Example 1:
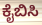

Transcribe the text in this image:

ಕೈಬಿಸಿ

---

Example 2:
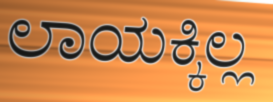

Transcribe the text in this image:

ಲಾಯಕ್ಕಿಲ್ಲ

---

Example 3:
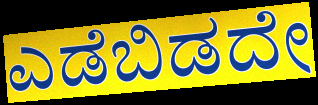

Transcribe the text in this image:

ಎಡೆಬಿಡದೇ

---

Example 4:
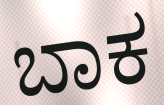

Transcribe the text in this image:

ಬಾಕ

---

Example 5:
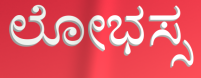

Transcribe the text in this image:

ಲೋಭಸ್ಸ